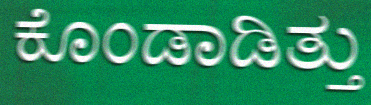
ಕೊಂಡಾಡಿತ್ತು